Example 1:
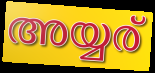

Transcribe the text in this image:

അയ്യര്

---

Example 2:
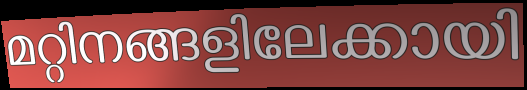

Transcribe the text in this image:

മറ്റിനങ്ങളിലേക്കായി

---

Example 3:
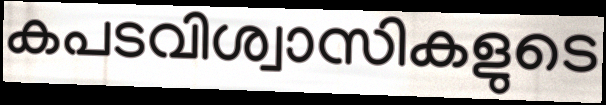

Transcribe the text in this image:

കപടവിശ്വാസികളുടെ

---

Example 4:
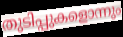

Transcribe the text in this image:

തുടിപ്പുകളൊന്നും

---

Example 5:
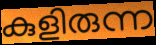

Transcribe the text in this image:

കുളിരുന്ന